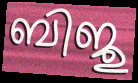
ബിജു